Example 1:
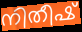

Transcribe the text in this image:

നിതീഷ്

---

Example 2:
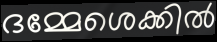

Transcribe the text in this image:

ദമ്മേശെക്കിൽ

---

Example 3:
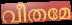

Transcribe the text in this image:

വീതമേ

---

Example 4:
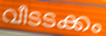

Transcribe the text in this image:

വീടടക്കം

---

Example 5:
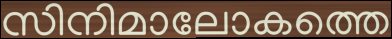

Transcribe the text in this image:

സിനിമാലോകത്തെ